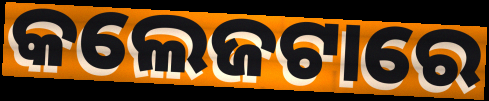
କଲେଜଟାରେ